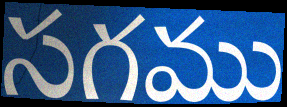
సగము